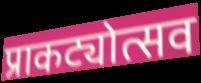
प्राकट्योत्सव